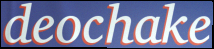
deochake